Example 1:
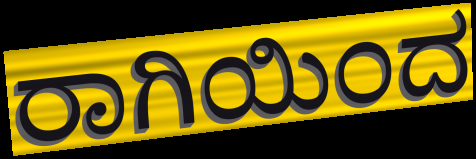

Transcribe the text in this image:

ರಾಗಿಯಿಂದ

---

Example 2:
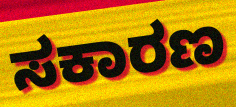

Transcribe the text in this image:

ಸಕಾರಣ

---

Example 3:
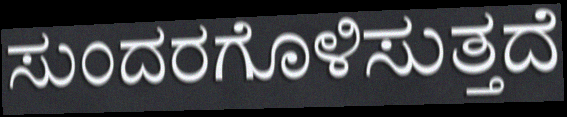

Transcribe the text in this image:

ಸುಂದರಗೊಳಿಸುತ್ತದೆ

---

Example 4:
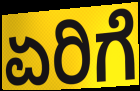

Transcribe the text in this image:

ಏರಿಗೆ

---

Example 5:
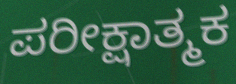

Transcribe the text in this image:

ಪರೀಕ್ಷಾತ್ಮಕ